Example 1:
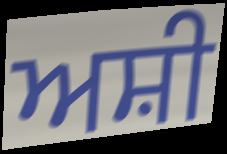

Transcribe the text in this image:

ਅਸ਼ੀ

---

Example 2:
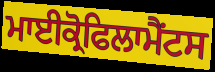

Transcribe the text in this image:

ਮਾਈਕ੍ਰੋਫਿਲਾਮੈਂਟਸ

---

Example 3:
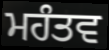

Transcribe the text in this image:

ਮਹੰਤਵ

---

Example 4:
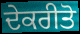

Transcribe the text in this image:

ਦੇਕਰੀਤੋ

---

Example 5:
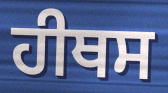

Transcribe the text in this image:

ਹੀਥਸ